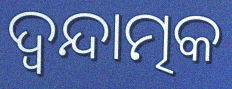
ଦ୍ଵନ୍ଦାତ୍ମକ